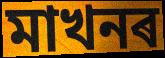
মাখনৰ